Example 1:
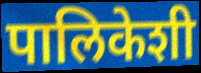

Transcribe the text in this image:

पालिकेशी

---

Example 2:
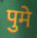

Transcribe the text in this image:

पुमे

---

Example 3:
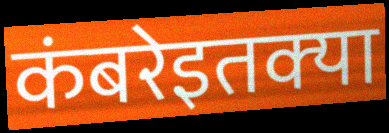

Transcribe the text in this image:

कंबरेइतक्या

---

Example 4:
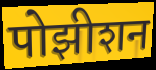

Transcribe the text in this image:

पोझीशन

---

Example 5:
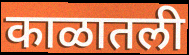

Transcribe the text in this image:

काळातली